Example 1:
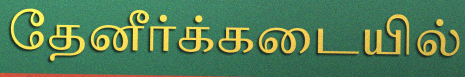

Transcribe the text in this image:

தேனீர்க்கடையில்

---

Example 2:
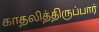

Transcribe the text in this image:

காதலித்திருப்பார்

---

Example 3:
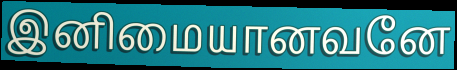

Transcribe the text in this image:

இனிமையானவனே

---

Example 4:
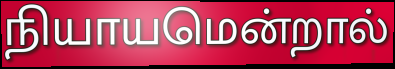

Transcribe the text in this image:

நியாயமென்றால்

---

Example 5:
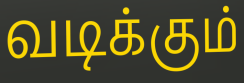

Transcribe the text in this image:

வடிக்கும்